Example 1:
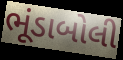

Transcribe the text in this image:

ભૂંડાબોલી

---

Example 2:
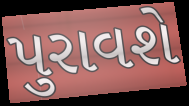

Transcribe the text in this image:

પુરાવશે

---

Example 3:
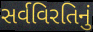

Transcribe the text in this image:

સર્વવિરતિનું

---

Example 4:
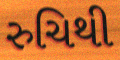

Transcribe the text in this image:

રુચિથી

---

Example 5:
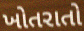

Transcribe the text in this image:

ખોતરાતો